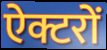
ऐक्टरों